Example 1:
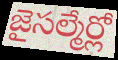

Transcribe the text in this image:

జైసల్మేర్లో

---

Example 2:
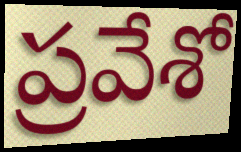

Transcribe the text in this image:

ప్రవేశో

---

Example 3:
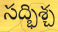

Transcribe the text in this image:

సద్భిశ్చ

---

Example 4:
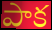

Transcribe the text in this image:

పాక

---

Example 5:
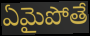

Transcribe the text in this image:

ఏమైపోతే